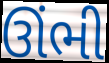
ઊંભી